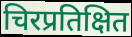
चिरप्रतिक्षित